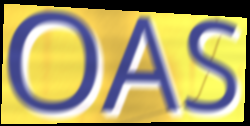
OAS